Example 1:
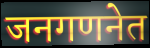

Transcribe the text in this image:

जनगणनेत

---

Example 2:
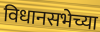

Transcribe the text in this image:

विधानसभेच्या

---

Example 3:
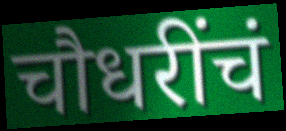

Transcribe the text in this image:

चौधरींचं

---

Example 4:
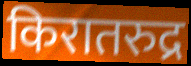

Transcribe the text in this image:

किरातरुद्र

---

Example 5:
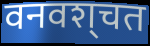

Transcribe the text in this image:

वनवश्चत